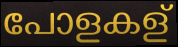
പോളകള്